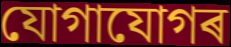
যোগাযোগৰ